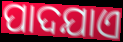
ପାଦଯାଏ